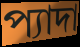
প্যাদা